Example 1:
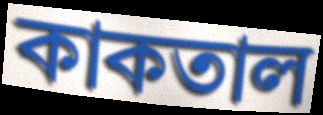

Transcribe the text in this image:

কাকতাল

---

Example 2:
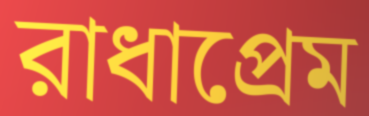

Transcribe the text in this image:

রাধাপ্রেম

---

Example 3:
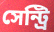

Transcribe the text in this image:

সেন্ট্রি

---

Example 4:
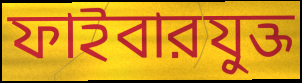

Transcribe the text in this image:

ফাইবারযুক্ত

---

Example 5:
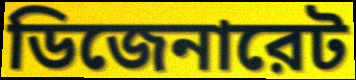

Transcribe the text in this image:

ডিজেনারেট